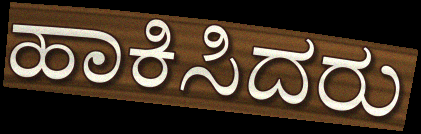
ಹಾಕಿಸಿದರು